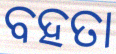
ବହତା